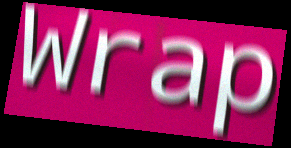
Wrap